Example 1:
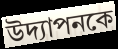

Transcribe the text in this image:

উদ্যাপনকে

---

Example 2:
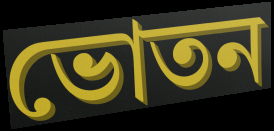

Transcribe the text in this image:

ভোতন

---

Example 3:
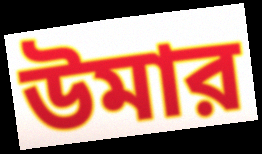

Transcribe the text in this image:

উমার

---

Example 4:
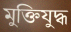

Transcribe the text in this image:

মুক্তিযুদ্ধ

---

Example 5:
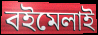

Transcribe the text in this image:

বইমেলাই